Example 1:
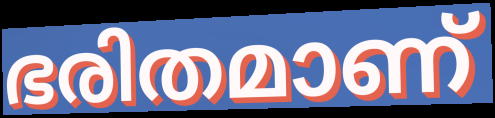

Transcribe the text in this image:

ഭരിതമാണ്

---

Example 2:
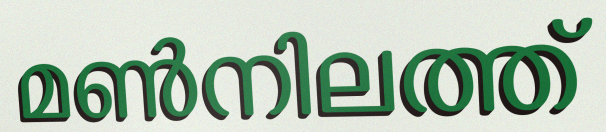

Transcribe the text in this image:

മൺനിലത്ത്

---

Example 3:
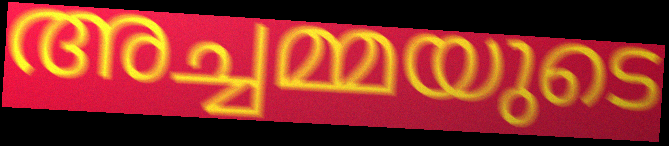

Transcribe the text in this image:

അച്ചമ്മയുടെ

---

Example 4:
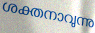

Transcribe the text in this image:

ശക്തനാവുന്നു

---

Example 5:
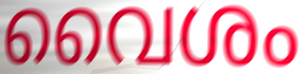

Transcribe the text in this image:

വൈശം